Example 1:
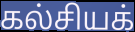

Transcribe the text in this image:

கல்சியக்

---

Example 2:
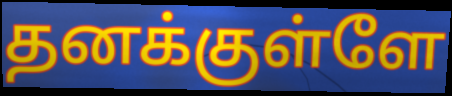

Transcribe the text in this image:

தனக்குள்ளே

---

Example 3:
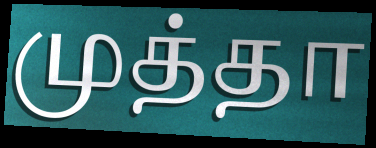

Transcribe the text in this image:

முத்தா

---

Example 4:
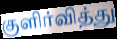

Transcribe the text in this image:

குளிர்வித்து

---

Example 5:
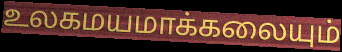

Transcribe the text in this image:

உலகமயமாக்கலையும்